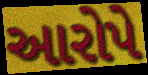
આરોપે